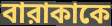
বারাকাকে